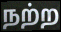
நற்ற